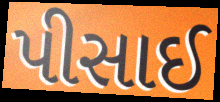
પીસાઈ